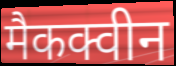
मैकक्वीन